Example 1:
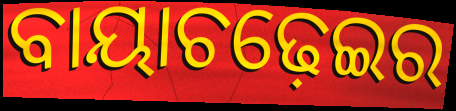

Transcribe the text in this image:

ବାୟାଚଢ଼େଇର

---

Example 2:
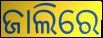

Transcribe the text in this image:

ଜାଲିରେ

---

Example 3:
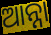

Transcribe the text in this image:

ଆନ୍ନା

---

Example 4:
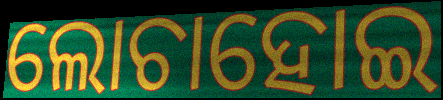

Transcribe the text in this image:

ଲୋଚାହୋଇ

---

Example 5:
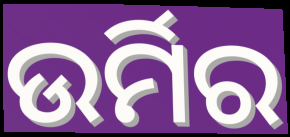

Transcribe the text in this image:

ଉର୍ମିର